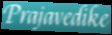
Prajavedike